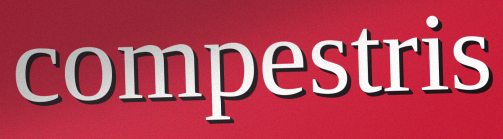
compestris